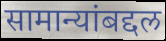
सामान्यांबद्दल